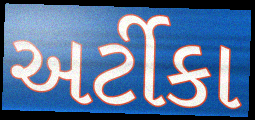
અર્ટીકા